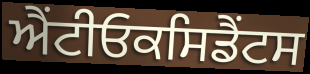
ਐਂਟੀਓਕਸਿਡੈਂਟਸ